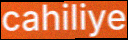
cahiliye